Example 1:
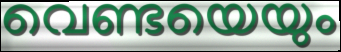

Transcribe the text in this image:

വെണ്ടയെയും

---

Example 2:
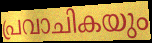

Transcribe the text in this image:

പ്രവാചികയും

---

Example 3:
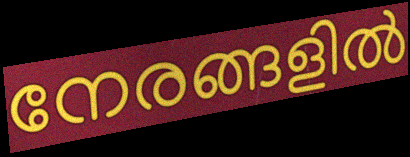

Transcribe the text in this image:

നേരങ്ങളിൽ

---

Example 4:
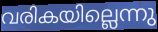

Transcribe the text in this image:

വരികയില്ലെന്നു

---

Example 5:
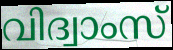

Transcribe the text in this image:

വിദ്വാംസ്